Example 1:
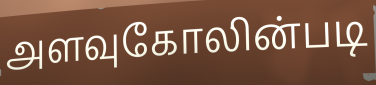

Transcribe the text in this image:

அளவுகோலின்படி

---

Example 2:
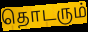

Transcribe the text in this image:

தொடரும்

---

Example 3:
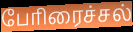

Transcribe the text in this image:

பேரிரைச்சல்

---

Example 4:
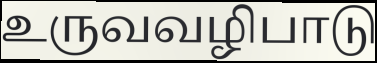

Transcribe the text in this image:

உருவவழிபாடு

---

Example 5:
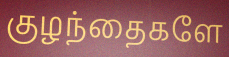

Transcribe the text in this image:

குழந்தைகளே